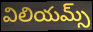
విలియమ్స్